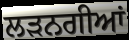
ਲੜਨਗੀਆਂ